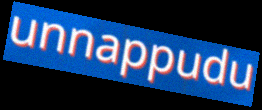
unnappudu